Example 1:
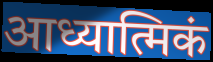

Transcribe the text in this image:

आध्यात्मिकं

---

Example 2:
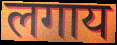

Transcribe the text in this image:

लगाय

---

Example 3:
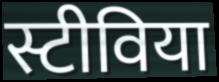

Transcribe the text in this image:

स्टीविया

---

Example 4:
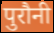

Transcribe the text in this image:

पुरौनी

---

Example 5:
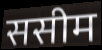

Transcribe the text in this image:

ससीम